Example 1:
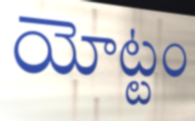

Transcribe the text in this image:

యోట్టం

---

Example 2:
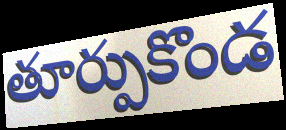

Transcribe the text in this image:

తూర్పుకొండ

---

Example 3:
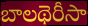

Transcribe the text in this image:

బాలథెరీసా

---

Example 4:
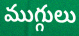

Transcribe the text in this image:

ముగ్గులు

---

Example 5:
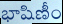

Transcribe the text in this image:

భాషిణీం